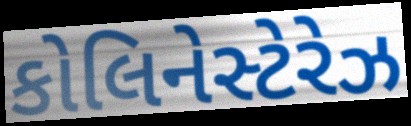
કોલિનેસ્ટેરેઝ